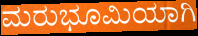
ಮರುಭೂಮಿಯಾಗಿ